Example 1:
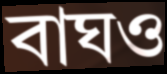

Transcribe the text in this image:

বাঘও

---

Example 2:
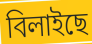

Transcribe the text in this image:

বিলাইছে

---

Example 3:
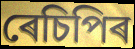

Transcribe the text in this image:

ৰেচিপিৰ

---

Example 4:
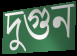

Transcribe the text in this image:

দুগুন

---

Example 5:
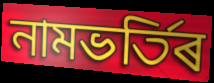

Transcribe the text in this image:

নামভৰ্তিৰ